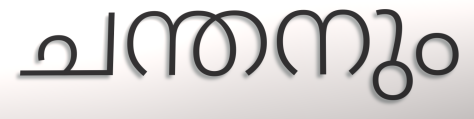
ചന്തനും